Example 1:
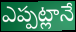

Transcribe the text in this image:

ఎప్పట్లానే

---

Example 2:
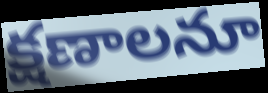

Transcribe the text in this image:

క్షణాలనూ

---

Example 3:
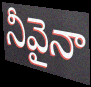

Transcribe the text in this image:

నీవైనా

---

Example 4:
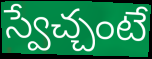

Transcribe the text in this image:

స్వేచ్చంటే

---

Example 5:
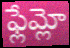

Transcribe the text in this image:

ఫ్లేమ్లో